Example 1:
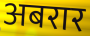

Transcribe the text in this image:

अबरार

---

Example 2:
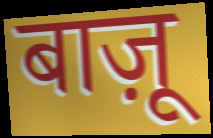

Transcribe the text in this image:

बाज़ू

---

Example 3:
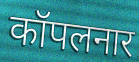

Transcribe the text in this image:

कॉपलनार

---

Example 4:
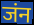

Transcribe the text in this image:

जंन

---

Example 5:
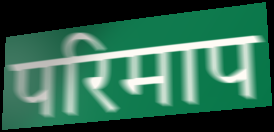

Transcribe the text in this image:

परिमाप